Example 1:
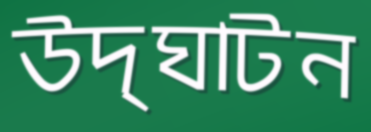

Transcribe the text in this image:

উদ্‌ঘাটন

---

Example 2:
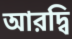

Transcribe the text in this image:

আরদ্বি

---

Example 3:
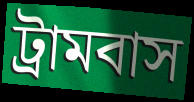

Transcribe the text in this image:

ট্রামবাস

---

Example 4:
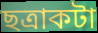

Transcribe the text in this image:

ছত্রাকটা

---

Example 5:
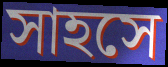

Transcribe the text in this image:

সাহসে